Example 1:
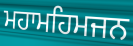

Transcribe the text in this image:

ਮਹਾਮਹਿਮਜਨ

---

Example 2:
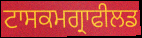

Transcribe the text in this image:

ਟਾਸਕਮਗ੍ਰਾਫੀਲਡ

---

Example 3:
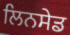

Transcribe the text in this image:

ਲਿਨਸੇਡ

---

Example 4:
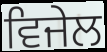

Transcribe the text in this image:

ਵਿਜੇਲ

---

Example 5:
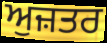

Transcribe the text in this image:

ਅੁਜ਼ਤਰ